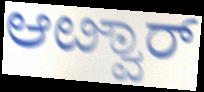
ಆೞ್ವಾರ್